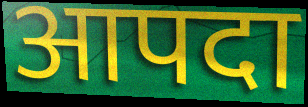
आपदा